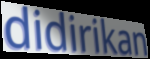
didirikan